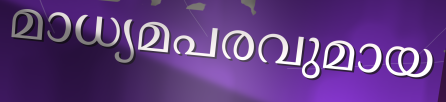
മാധ്യമപരവുമായ